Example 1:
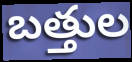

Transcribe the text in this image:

బత్తుల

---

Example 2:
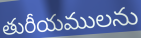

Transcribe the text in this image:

తురీయములను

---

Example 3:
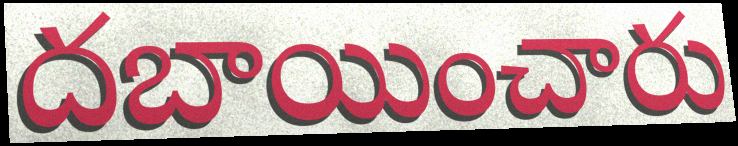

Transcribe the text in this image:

దబాయించారు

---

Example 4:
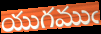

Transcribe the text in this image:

యుగముఁ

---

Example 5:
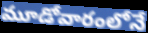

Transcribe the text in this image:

మూడోవారంలోనే